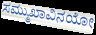
ಸಮ್ಮುಖಾವಿನಯೋ